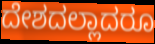
ದೇಶದಲ್ಲಾದರೂ